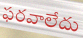
ఫరవాలేదు